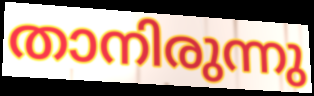
താനിരുന്നു